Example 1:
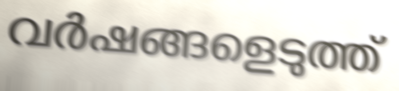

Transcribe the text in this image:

വർഷങ്ങളെടുത്ത്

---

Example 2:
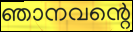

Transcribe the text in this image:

ഞാനവന്റെ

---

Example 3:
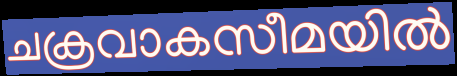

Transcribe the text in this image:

ചക്രവാകസീമയിൽ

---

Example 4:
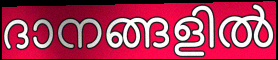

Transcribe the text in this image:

ദാനങ്ങളിൽ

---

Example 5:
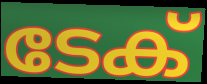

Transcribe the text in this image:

ടേക്